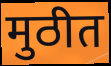
मुठीत